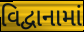
વિદ્વાનામાં